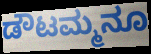
ಡೌಟಮ್ಮನೂ